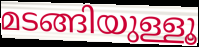
മടങ്ങിയുള്ളൂ